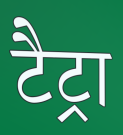
टैट्रा